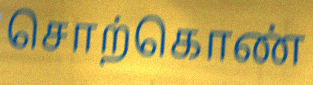
சொற்கொண்